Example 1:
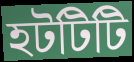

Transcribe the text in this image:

হটটিটি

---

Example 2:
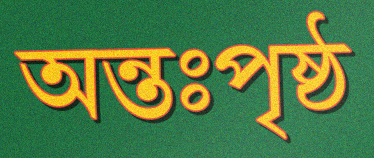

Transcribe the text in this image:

অন্তঃপৃষ্ঠ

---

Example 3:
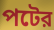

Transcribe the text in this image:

পটের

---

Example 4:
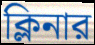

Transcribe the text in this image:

ক্লিনার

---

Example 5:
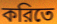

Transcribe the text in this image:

করিতে